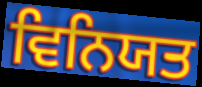
ਵਿਨਿਯਤ